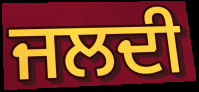
ਜਲਦੀ